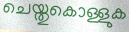
ചെയ്തുകൊള്ളുക